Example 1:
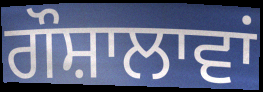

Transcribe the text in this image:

ਗੌਸ਼ਾਲਾਵਾਂ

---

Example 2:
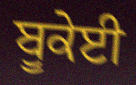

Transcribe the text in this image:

ਬੂਕੇਈ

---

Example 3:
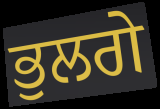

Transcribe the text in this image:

ਭੁਲਗੇ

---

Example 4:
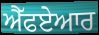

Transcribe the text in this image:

ਐੱਫਏਆਰ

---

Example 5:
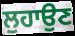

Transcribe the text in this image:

ਲੁਹਾਉਣ